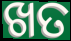
ଖତ